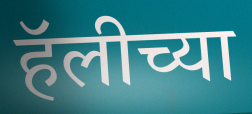
हॅलीच्या